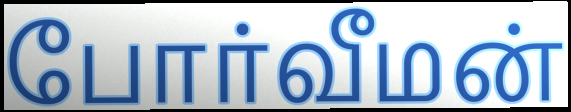
போர்வீமன்